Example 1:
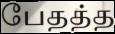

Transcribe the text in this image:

பேதத்த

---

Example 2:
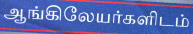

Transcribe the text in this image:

ஆங்கிலேயர்களிடம்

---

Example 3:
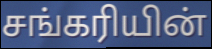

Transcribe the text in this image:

சங்கரியின்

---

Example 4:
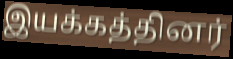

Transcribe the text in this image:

இயக்கத்தினர்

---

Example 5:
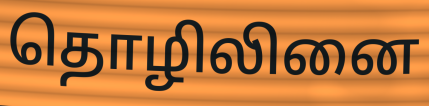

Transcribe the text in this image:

தொழிலினை